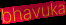
bhavuka